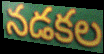
నడకల